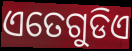
ଏତେଗୁଡିଏ